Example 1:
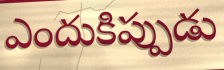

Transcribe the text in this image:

ఎందుకిప్పుడు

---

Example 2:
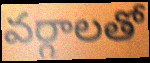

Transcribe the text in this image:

వర్గాలతో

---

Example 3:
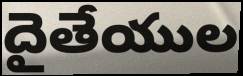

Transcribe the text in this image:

దైతేయుల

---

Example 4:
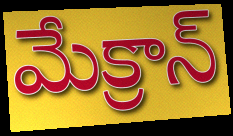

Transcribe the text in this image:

మేక్రాన్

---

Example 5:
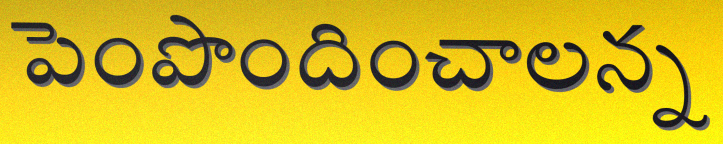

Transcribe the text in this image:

పెంపొందించాలన్న